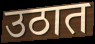
उठात